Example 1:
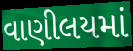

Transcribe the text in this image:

વાણીલયમાં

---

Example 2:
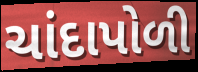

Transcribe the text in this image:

ચાંદાપોળી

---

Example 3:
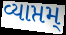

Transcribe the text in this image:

વ્યાપ્તમ્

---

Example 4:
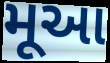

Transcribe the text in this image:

મૂઆ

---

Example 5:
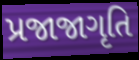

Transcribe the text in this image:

પ્રજાજાગૃતિ